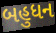
બહુધન